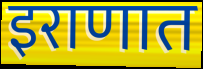
इराणात